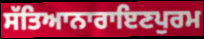
ਸੱਤਿਆਨਾਰਾਇਣਪੁਰਮ